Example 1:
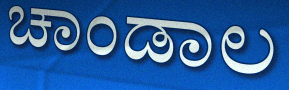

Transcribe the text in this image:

ಚಾಂಡಾಲ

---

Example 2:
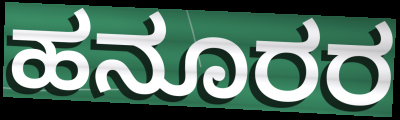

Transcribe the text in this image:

ಹನೂರರ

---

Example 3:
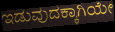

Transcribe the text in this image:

ಇಡುವುದಕ್ಕಾಗಿಯೇ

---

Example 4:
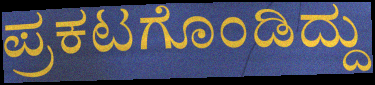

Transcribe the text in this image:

ಪ್ರಕಟಗೊಂಡಿದ್ದು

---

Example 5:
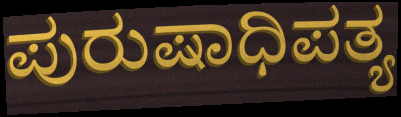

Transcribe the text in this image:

ಪುರುಷಾಧಿಪತ್ಯ